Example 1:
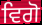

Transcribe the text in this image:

ਵਿਗੋ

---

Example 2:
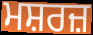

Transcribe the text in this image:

ਮਸ਼ਰਜ਼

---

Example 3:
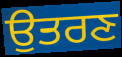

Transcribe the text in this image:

ਉਤਰਣ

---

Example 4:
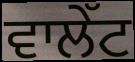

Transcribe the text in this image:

ਵਾਲੇੱਟ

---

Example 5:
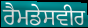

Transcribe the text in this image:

ਰੈਮਡੇਸਵੀਰ